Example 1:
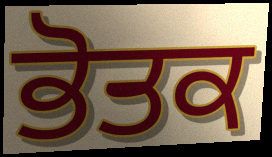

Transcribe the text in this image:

ਭੋਤਕ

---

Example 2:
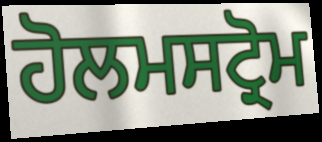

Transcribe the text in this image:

ਹੋਲਮਸਟ੍ਰੋਮ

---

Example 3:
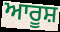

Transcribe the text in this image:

ਆਰੂਸ਼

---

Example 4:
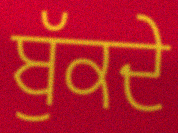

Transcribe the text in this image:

ਬੁੱਕਦੇ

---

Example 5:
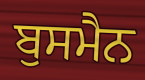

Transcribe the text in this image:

ਬੁਸਮੈਨ